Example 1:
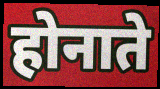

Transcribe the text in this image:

होनाते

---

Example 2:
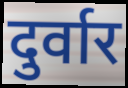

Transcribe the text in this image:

दुर्वार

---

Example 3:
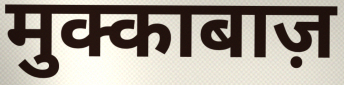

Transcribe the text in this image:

मुक्काबाज़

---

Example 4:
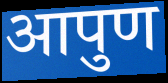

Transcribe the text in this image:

आपुण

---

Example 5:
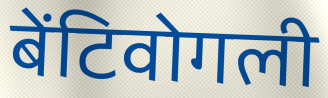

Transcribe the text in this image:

बेंटिवोगली